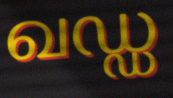
ഖഡ്ഡ